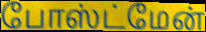
போஸ்ட்மேன்